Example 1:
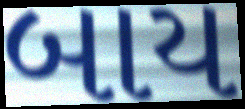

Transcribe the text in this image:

બાય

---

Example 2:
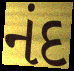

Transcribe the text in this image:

નંદ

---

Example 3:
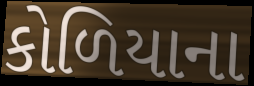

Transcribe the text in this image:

કોળિયાના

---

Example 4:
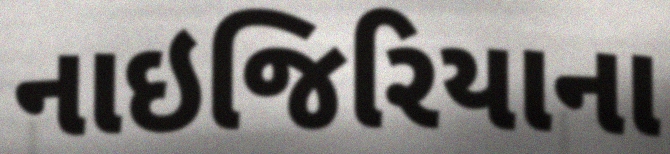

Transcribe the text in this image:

નાઇજિરિયાના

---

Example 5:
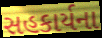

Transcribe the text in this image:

સહકાર્યના